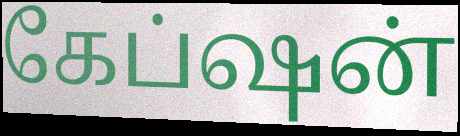
கேப்ஷன்